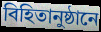
বিহিতানুষ্ঠানে